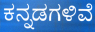
ಕನ್ನಡಗಳಿವೆ